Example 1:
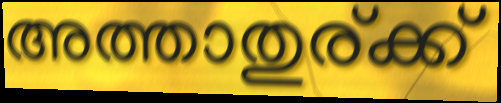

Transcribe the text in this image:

അത്താതുര്ക്ക്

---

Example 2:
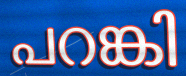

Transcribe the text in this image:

പറങ്കി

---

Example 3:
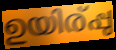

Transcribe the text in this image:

ഉയിര്പ്പു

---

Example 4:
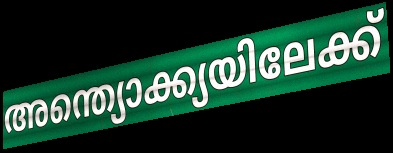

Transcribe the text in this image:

അന്ത്യൊക്ക്യയിലേക്ക്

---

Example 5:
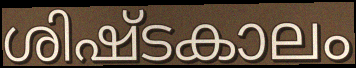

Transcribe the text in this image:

ശിഷ്ടകാലം